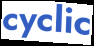
cyclic